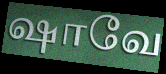
ஷாவே